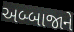
અબ્બાજાને